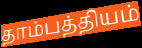
தாம்பத்தியம்